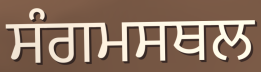
ਸੰਗਮਸਥਲ